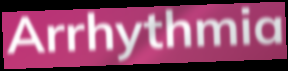
Arrhythmia